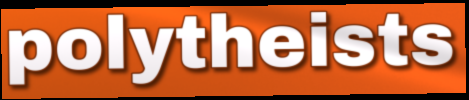
polytheists